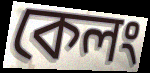
কেলং